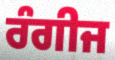
ਰੰਗੀਜ